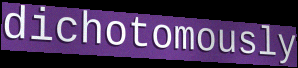
dichotomously